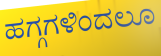
ಹಗ್ಗಗಳಿಂದಲೂ